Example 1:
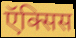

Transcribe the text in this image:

ऍक्सिस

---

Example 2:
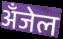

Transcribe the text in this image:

अँजेल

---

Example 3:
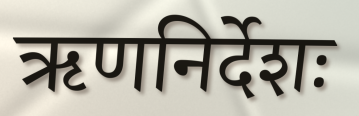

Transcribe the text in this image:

ऋणनिर्देशः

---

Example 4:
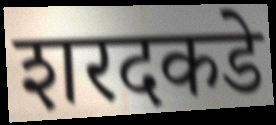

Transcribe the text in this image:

शरदकडे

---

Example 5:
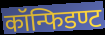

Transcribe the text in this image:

कॉन्फिडण्ट